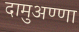
दामुअण्णा